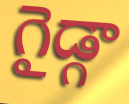
గైడ్గా